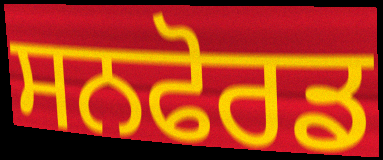
ਸਨਫੋਰਡ